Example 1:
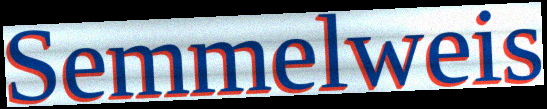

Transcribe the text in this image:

Semmelweis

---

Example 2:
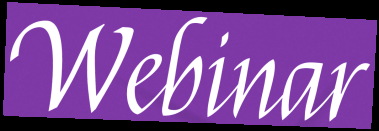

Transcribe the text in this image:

Webinar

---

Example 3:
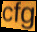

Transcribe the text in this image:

cfg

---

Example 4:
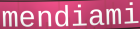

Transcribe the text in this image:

mendiami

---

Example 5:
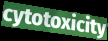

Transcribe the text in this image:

cytotoxicity